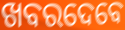
ଖବରଦେବେ